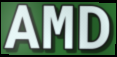
AMD